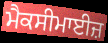
ਮੈਕਸੀਮਾਈਜ਼